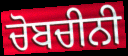
ਚੋਬਚੀਨੀ